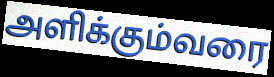
அளிக்கும்வரை